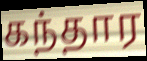
கந்தார